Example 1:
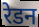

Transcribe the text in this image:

रेडन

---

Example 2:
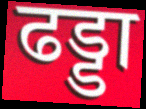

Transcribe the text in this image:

ढड्डा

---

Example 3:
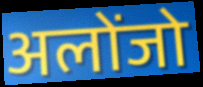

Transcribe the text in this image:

अलोंजो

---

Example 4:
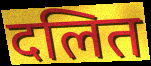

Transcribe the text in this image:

दलित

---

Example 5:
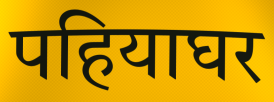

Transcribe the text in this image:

पहियाघर